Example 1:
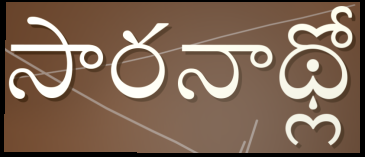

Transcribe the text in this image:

సారనాథ్లో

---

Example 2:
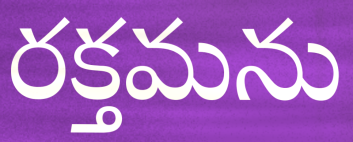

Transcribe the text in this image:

రక్తమను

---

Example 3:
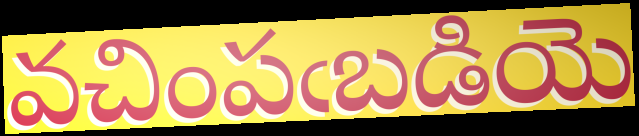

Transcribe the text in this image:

వచింపఁబడియె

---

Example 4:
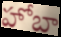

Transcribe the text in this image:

హోబా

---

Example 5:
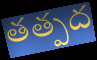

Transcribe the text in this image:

తత్పద